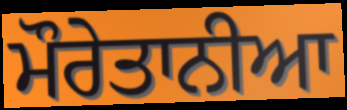
ਮੌਰੇਤਾਨੀਆ